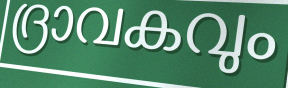
ദ്രാവകവും